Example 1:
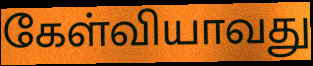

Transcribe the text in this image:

கேள்வியாவது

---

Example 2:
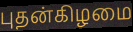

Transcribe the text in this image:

புதன்கிழமை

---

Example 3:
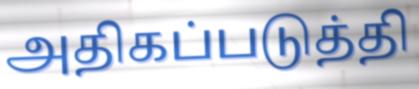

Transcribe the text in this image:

அதிகப்படுத்தி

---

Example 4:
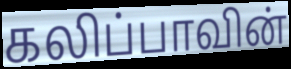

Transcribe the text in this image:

கலிப்பாவின்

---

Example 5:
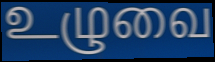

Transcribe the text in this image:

உழுவை